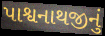
પાશ્વનાથજીનું